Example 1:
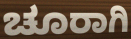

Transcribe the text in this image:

ಚೂರಾಗಿ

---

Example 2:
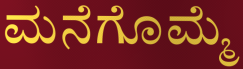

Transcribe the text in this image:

ಮನೆಗೊಮ್ಮೆ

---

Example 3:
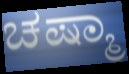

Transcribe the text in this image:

ಚಷ್ಮಾ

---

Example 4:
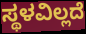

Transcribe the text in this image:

ಸ್ಥಳವಿಲ್ಲದೆ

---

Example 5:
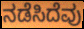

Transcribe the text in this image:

ನಡೆಸಿದೆವು